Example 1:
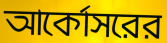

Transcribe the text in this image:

আর্কোসরের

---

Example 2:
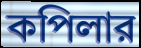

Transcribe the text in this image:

কপিলার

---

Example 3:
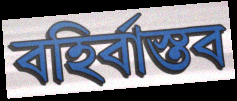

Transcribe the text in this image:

বহির্বাস্তব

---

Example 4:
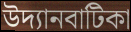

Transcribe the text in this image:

উদ্যানবাটিকা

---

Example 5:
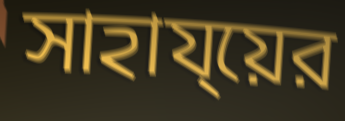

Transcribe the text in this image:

সাহায্য়ের